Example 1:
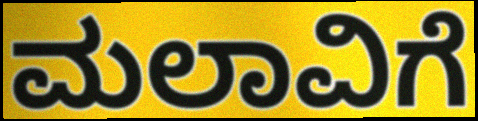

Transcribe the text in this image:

ಮಲಾವಿಗೆ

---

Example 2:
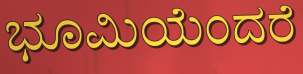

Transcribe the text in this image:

ಭೂಮಿಯೆಂದರೆ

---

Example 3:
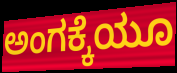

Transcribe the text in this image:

ಅಂಗಕ್ಕೆಯೂ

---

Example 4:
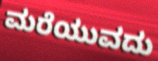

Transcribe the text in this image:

ಮರೆಯುವದು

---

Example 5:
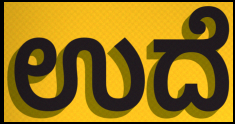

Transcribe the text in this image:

ಉದೆ